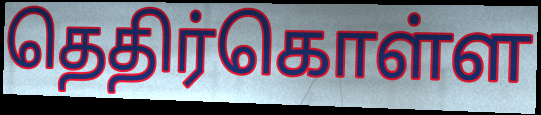
தெதிர்கொள்ள